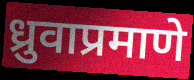
ध्रुवाप्रमाणे